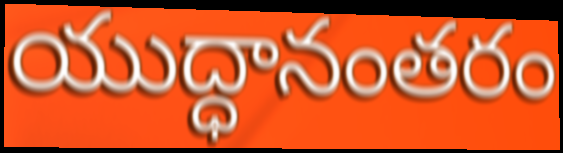
యుద్ధానంతరం